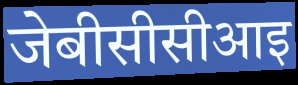
जेबीसीसीआइ